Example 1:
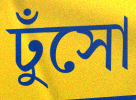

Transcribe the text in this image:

ঢুঁসো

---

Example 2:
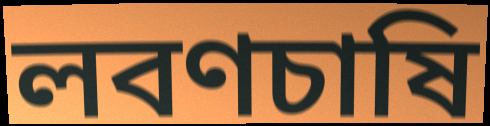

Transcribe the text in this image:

লবণচাষি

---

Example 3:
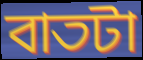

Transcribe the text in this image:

বাতটা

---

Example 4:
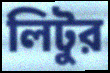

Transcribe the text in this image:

লিটুর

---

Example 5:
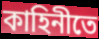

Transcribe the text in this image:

কাহিনীতে